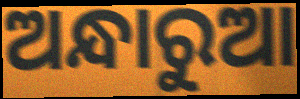
ଅନ୍ଧାରୁଆ